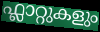
ഫ്ലാറ്റുകളും